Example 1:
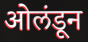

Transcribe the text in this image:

ओलंडून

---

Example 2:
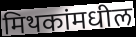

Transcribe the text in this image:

मिथकांमधील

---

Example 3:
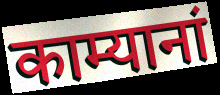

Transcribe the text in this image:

काम्यानां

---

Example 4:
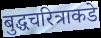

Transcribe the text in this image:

बुद्धचरित्राकडे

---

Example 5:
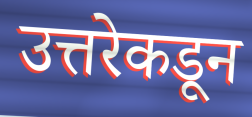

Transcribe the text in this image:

उत्तरेकडून